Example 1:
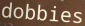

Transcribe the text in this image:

dobbies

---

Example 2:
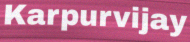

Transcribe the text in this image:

Karpurvijay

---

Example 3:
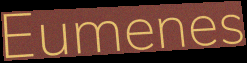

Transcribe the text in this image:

Eumenes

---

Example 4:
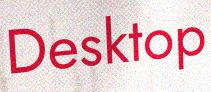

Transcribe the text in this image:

Desktop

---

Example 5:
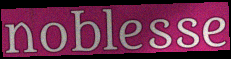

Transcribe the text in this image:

noblesse